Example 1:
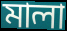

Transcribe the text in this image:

মালা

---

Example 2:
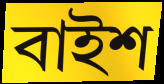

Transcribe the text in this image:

বাইশ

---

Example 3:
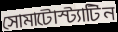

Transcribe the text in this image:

সোমাটোস্ট্যাটিন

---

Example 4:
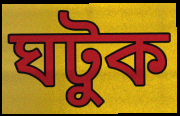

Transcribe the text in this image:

ঘটুক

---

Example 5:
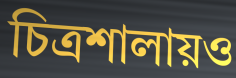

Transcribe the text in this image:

চিত্রশালায়ও